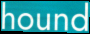
hound